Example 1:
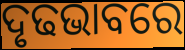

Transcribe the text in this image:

ଦୃଢଭାବରେ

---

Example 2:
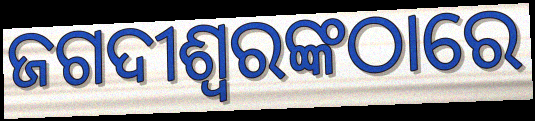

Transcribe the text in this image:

ଜଗଦୀଶ୍ୱରଙ୍କଠାରେ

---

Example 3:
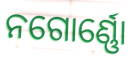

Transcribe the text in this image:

ନଗୋର୍ଣ୍ଣୋ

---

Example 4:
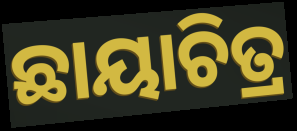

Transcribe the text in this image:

ଛାୟାଚିତ୍ର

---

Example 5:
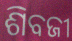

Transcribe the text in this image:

ଶିବଜୀ